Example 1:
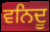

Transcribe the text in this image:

ਵਨਿਦੂ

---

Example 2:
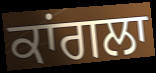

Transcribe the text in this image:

ਕਾਂਗਲਾ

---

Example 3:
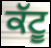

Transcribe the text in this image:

ਕੱਟੂ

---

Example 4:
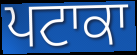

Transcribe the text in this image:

ਪਟਾਕਾ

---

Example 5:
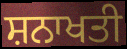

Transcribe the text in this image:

ਸ਼ਨਾਖਤੀ